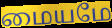
மையமே